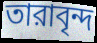
তারাবৃন্দ